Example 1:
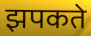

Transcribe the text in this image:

झपकते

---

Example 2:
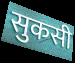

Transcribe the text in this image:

सुकसी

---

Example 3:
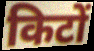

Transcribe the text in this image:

किटों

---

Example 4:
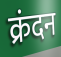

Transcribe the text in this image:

क्रंदन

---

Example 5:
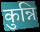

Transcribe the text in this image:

कुन्नि